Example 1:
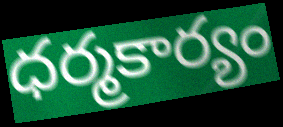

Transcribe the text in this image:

ధర్మకార్యం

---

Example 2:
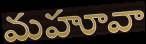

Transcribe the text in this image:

మహూవా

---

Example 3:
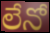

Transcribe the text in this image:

లేనో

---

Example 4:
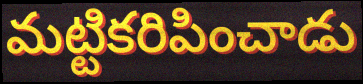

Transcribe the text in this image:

మట్టికరిపించాడు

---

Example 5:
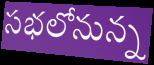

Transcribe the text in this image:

సభలోనున్న